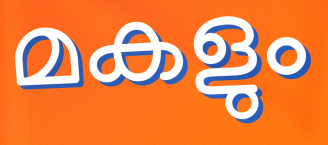
മകളും